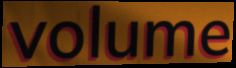
volume